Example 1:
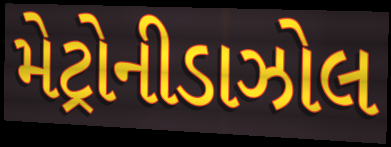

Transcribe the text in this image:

મેટ્રોનીડાઝોલ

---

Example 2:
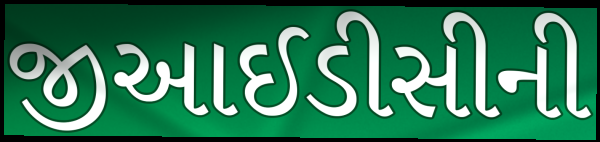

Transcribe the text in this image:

જીઆઈડીસીની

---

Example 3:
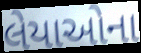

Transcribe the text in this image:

લેયાઓના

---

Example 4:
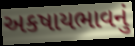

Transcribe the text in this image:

અકષાયભાવનું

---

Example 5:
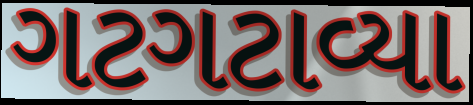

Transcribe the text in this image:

ગટગટાવ્યા